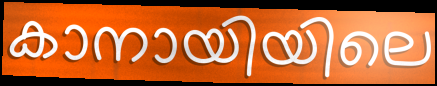
കാനായിയിലെ